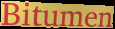
Bitumen